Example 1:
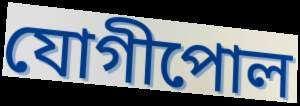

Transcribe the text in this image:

যোগীপোল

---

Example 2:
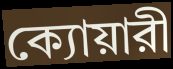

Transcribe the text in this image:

ক্যোয়ারী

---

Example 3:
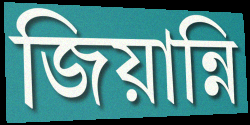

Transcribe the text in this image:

জিয়ান্নি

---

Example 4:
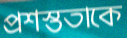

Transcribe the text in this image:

প্রশস্ততাকে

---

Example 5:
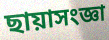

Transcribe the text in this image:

ছায়াসংজ্ঞা